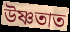
উষ্ণতাত